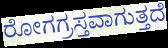
ರೋಗಗ್ರಸ್ತವಾಗುತ್ತದೆ